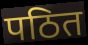
पठित